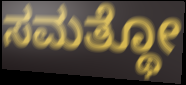
ಸಮತ್ಥೋ